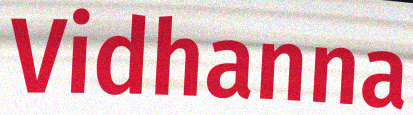
Vidhanna